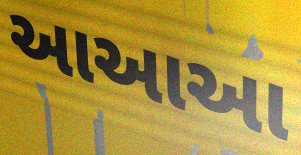
આઆઆ